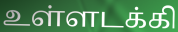
உள்ளடக்கி